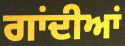
ਗਾਂਦੀਆਂ